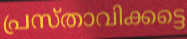
പ്രസ്താവിക്കട്ടെ